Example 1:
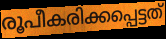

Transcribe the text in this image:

രൂപീകരിക്കപ്പെട്ടത്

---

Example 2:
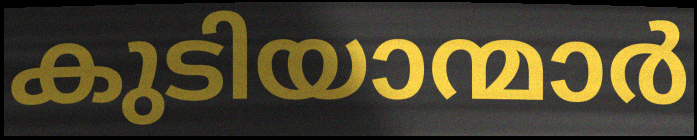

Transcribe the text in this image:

കുടിയാന്മാർ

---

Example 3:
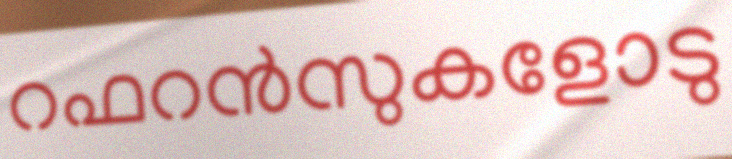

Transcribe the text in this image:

റഫറൻസുകളോടു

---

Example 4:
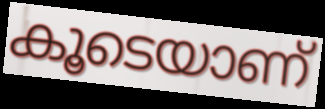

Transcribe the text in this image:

കൂടെയാണ്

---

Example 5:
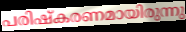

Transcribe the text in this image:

പരിഷ്കരണമായിരുന്നു